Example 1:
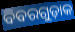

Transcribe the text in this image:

ବିବରଗୁଡ଼ାକ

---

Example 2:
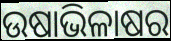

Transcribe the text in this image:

ଉଷାଭିଳାଷର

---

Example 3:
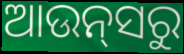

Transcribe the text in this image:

ଆଉନ୍‍ସରୁ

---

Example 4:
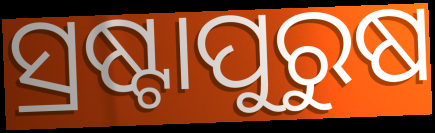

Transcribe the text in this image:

ସ୍ରଷ୍ଟାପୁରୁଷ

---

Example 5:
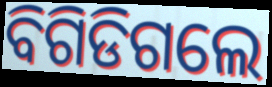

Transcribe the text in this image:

ବିଗିଡିଗଲେ